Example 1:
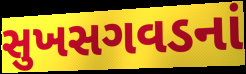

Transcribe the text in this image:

સુખસગવડનાં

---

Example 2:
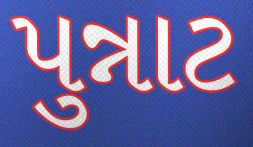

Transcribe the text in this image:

પુન્નાટ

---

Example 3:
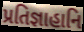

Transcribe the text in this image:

પ્રતિજ્ઞાહાનિ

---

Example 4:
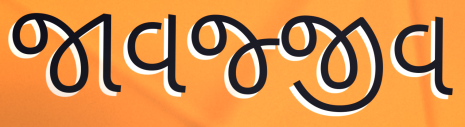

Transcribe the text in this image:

જાવજ્જીવ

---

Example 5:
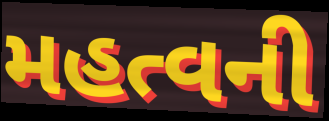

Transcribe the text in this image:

મહત્વની